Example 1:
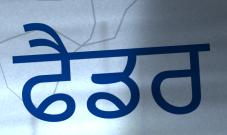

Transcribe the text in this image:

ਫੈਡਰ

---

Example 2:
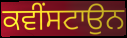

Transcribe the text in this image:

ਕਵੀਂਸਟਾਉਨ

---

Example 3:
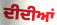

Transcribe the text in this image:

ਦੀਦੀਆਂ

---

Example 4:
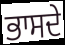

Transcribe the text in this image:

ਭਾਸਦੇ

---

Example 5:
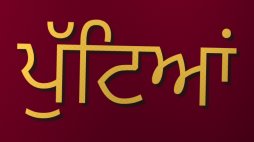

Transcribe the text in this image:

ਪੁੱਟਿਆਂ